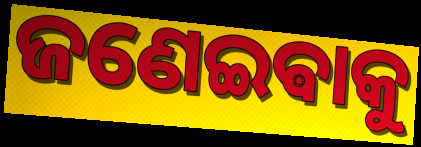
ଜଣେଇଵାକୁ